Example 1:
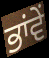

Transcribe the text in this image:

ਭਾਂਵੇਂ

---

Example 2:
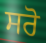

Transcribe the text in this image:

ਸਰੋ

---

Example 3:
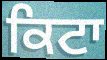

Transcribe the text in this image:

ਕਿਟਾ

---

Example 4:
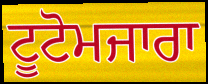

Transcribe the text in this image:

ਟੂਟੋਮਜਾਰਾ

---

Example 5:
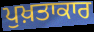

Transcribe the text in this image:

ਪੁਖ਼ਤਾਕਾਰ